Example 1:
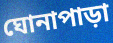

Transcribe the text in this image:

ঘোনাপাড়া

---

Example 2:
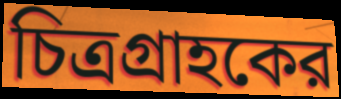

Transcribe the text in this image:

চিত্রগ্রাহকের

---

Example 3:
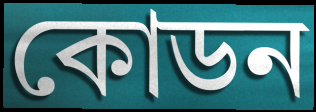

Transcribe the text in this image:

কোডন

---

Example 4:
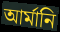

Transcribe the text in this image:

আর্মানি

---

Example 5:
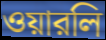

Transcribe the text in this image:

ওয়ারলি